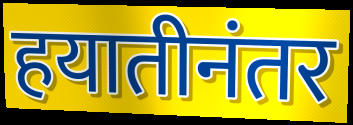
हयातीनंतर